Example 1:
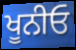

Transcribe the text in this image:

ਖੂਨੀਓ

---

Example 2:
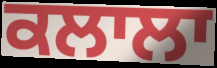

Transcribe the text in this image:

ਕਲਾਲਾ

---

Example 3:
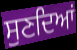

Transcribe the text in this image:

ਸੁਣਦਿਆਂ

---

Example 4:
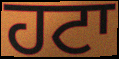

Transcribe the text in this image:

ਹਟਾ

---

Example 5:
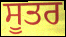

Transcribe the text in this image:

ਸੂਤਰ